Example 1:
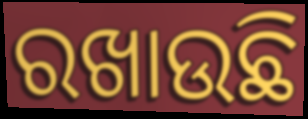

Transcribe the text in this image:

ରଖାଉଛି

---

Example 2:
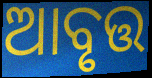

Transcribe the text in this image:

ଆବୃତ୍ତ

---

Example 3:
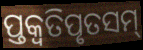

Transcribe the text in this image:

ପ୍ତକ୍ଵତିପୃତସମ୍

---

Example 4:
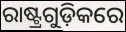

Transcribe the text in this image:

ରାଷ୍ଟ୍ରଗୁଡ଼ିକରେ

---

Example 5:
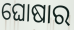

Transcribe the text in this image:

ଘୋଷାର